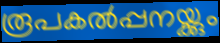
രൂപകൽപ്പനയ്ക്കും